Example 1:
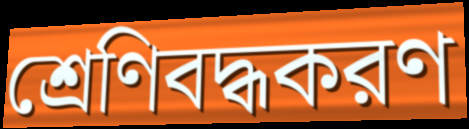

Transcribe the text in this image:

শ্রেণিবদ্ধকরণ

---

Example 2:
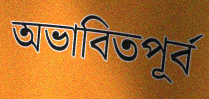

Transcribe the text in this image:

অভাবিতপূর্ব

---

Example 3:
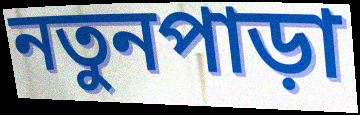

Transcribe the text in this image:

নতুনপাড়া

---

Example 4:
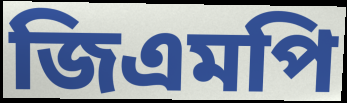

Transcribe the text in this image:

জিএমপি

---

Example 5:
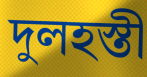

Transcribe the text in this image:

দুলহস্তী